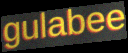
gulabee